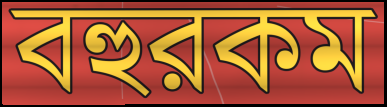
বহুরকম